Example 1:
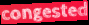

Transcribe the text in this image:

congested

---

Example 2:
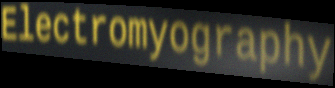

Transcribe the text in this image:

Electromyography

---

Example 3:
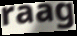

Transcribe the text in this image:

raag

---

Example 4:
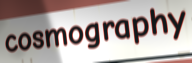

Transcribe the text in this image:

cosmography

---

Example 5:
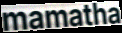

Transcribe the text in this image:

mamatha